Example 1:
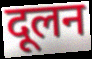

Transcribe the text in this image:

दूलन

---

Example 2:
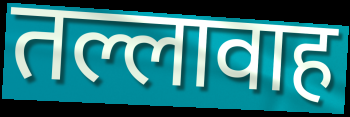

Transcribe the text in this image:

तल्लावाह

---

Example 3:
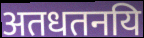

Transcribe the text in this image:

अतधतनयि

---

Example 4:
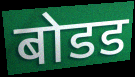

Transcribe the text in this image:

बोडड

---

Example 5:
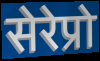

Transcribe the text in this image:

सेरेप्रो